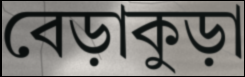
বেড়াকুড়া